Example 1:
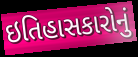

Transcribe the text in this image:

ઇતિહાસકારોનું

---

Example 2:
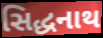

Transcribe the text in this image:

સિદ્ધનાથ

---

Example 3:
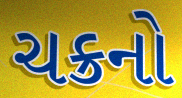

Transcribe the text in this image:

ચક્રનો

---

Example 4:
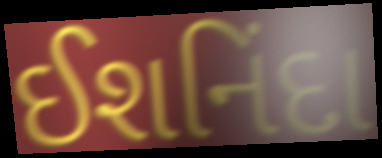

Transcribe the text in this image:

ઈશનિંદા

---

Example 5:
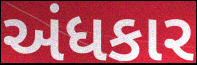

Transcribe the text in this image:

અંધકાર